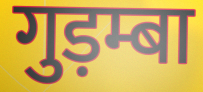
गुड़म्बा